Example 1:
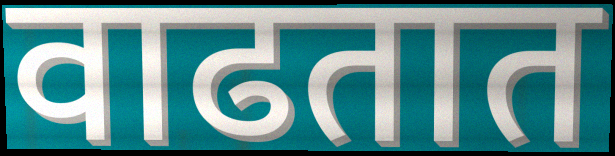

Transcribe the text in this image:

वाढतात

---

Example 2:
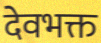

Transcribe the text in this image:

देवभक्त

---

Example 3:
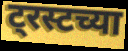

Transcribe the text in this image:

ट्रस्टच्या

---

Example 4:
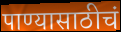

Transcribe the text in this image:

पाण्यासाठीचं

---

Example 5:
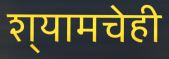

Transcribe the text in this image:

श्यामचेही